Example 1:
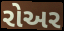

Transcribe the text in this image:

રોઅર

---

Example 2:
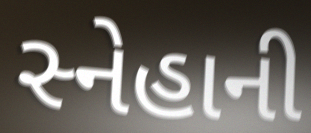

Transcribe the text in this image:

સ્નેહાની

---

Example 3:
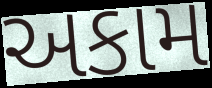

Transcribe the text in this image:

અકામ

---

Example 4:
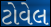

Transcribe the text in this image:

ટોવેલ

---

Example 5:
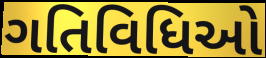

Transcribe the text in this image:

ગતિવિધિઓ